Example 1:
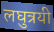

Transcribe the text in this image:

लघुत्रयी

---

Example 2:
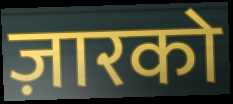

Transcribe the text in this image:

ज़ारको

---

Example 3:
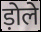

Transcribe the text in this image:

ड़ोले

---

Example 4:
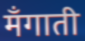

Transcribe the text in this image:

मँगाती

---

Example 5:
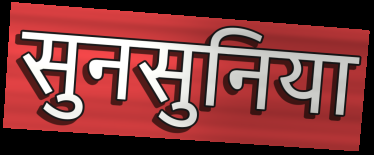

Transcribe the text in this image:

सुनसुनिया